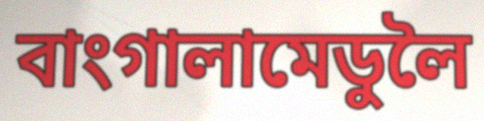
বাংগালামেডুলৈ